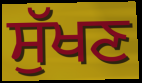
ਸੁੱਖਣ